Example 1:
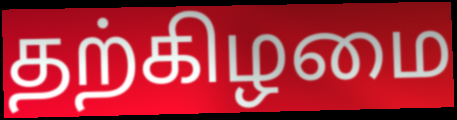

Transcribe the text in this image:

தற்கிழமை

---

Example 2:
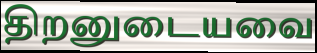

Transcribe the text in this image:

திறனுடையவை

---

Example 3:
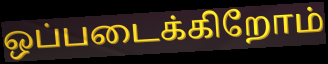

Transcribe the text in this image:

ஒப்படைக்கிறோம்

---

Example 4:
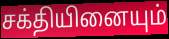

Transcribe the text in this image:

சக்தியினையும்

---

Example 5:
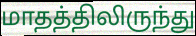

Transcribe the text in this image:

மாதத்திலிருந்து